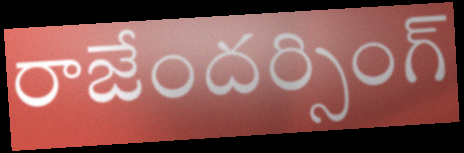
రాజేందర్సింగ్